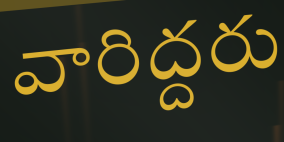
వారిద్దరు